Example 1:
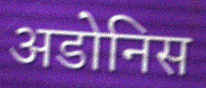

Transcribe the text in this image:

अडोनिस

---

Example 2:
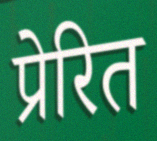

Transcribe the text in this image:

प्रेरित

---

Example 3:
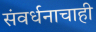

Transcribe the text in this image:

संवर्धनाचाही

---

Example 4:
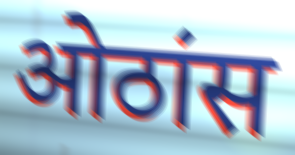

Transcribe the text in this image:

ओठांस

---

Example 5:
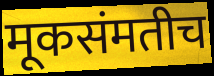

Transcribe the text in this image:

मूकसंमतीच